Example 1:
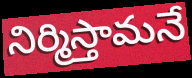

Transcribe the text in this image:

నిర్మిస్తామనే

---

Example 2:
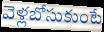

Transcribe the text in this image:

వెళ్లబోసుకుంటే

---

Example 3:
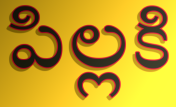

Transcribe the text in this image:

పిల్లకి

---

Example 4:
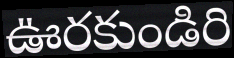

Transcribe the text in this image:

ఊరకుండిరి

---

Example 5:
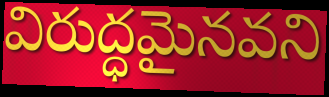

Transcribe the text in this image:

విరుద్ధమైనవని